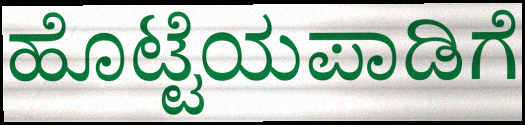
ಹೊಟ್ಟೆಯಪಾಡಿಗೆ